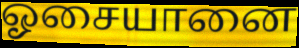
ஓசையானை